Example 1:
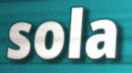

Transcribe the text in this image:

sola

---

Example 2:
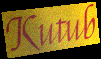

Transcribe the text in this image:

Kutub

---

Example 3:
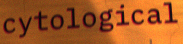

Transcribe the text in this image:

cytological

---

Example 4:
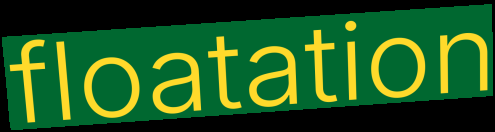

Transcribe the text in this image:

floatation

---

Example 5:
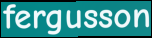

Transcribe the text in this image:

fergusson